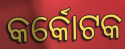
କର୍କୋଟକ